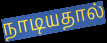
நாடியதால்